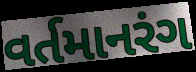
વર્તમાનરંગ